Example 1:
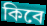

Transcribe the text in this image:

কিবে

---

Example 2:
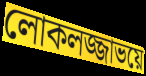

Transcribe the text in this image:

লোকলজ্জাভয়ে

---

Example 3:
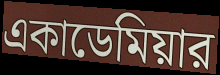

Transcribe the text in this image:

একাডেমিয়ার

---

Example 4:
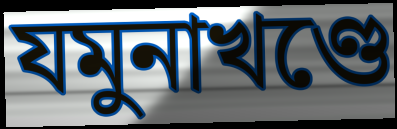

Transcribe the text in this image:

যমুনাখণ্ডে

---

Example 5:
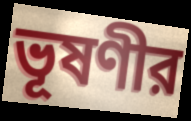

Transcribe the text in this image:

ভূষণীর